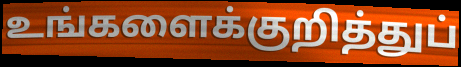
உங்களைக்குறித்துப்